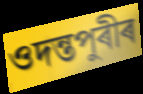
ওদন্তপুৰীৰ